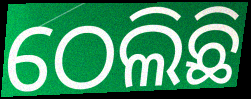
ଠେଲିଛି